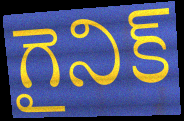
గైనిక్